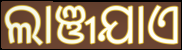
ଲାଞ୍ଜଯାଏ